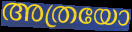
അത്രയോ